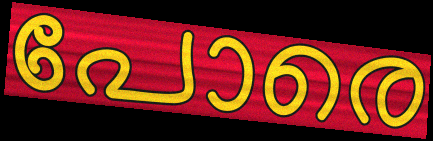
പോരെ